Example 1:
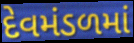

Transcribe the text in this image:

દેવમંડળમાં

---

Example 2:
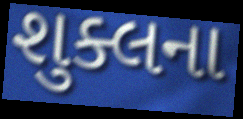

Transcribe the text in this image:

શુક્લના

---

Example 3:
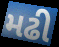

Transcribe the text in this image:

મઢી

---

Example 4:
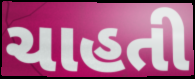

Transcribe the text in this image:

ચાહતી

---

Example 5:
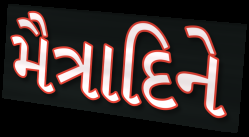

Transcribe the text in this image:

મૈત્રાદિને